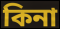
কিনা